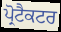
ਪ੍ਰੋਟੈਕਟਰ